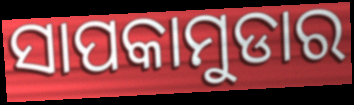
ସାପକାମୁଡାର